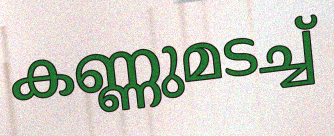
കണ്ണുമടച്ച്